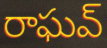
రాఘవ్